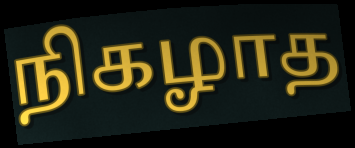
நிகழாத